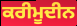
ਕਰੀਮੂਦੀਨ